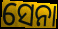
ସେନା